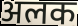
अलक